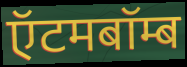
ऍटमबॉम्ब